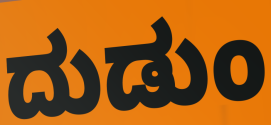
ದುಡುಂ